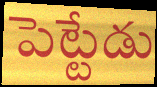
పెట్టేడు